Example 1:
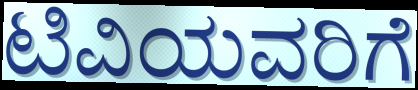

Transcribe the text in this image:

ಟಿವಿಯವರಿಗೆ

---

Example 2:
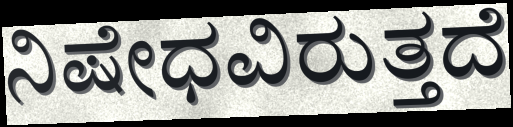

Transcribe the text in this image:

ನಿಷೇಧವಿರುತ್ತದೆ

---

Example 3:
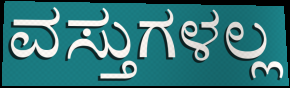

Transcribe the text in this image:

ವಸ್ತುಗಳಲ್ಲ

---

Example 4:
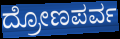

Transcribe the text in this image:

ದ್ರೋಣಪರ್ವ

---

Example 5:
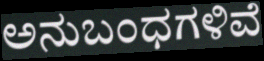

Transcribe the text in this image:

ಅನುಬಂಧಗಳಿವೆ